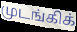
முடங்கிக்